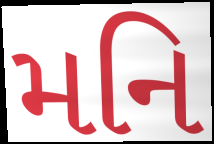
મનિ